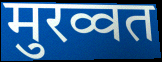
मुरव्वत